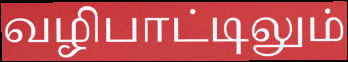
வழிபாட்டிலும்